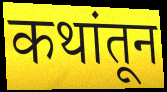
कथांतून